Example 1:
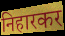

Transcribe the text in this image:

निहारकर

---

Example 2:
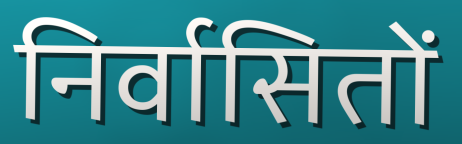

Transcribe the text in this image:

निर्वासितों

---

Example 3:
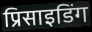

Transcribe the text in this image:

प्रिसाइडिंग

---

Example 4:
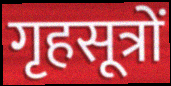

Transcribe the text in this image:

गृहसूत्रों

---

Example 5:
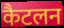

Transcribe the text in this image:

कैटलन